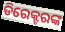
ଡିରେକ୍ଟରଙ୍କ